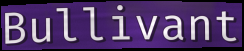
Bullivant